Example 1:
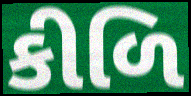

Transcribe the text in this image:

કીળિ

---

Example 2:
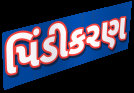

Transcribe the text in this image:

પિંડીકરણ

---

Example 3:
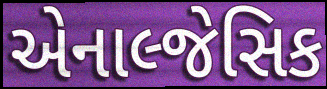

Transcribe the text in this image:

એનાલ્જેસિક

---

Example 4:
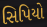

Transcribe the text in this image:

સિપિયો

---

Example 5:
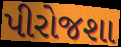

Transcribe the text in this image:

પીરોજશા